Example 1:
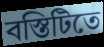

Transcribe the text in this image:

বস্তিটিতে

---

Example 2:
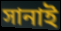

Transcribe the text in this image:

সানাই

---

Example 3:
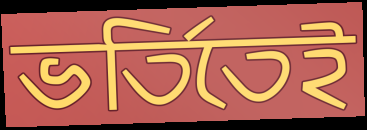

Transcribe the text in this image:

ভর্তিতেই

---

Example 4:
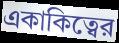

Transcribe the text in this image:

একাকিত্বের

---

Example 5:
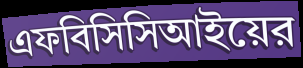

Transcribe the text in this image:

এফবিসিসিআইয়ের